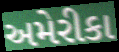
અમેરીકા